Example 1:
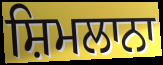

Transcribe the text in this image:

ਸ਼ਿਮਲਾਨਾ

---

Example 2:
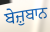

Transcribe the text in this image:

ਬੇਜ਼ੁਬਾਨ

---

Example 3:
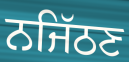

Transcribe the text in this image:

ਨਜਿੱਠਣ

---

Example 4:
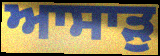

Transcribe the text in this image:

ਆਸਾੜੁ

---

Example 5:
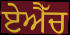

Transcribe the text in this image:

ਏਐੱਚ